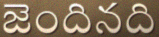
జెందినది